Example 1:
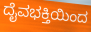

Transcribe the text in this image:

ದೈವಭಕ್ತಿಯಿಂದ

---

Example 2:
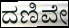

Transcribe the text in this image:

ದಣಿವೇ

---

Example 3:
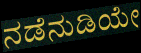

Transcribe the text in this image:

ನಡೆನುಡಿಯೇ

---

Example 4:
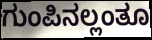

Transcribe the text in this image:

ಗುಂಪಿನಲ್ಲಂತೂ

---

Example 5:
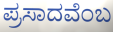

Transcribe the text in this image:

ಪ್ರಸಾದವೆಂಬ